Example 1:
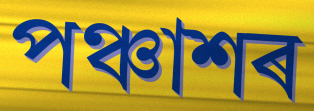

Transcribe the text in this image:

পঞ্চাশৰ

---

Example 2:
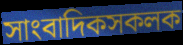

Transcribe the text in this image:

সাংবাদিকসকলক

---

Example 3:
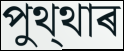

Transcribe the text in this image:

পুথ্থাৰ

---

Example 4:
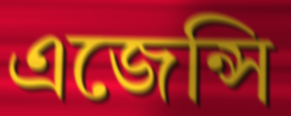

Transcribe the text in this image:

এজেন্সি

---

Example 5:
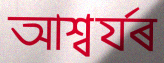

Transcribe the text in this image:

আশ্বৰ্যৰ